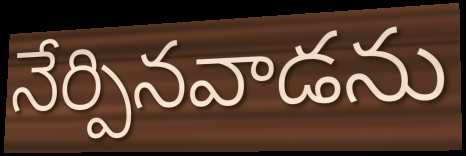
నేర్పినవాడను